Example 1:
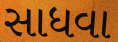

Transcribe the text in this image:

સાધવા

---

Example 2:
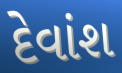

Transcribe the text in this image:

દેવાંશ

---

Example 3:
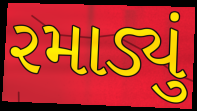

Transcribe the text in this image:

રમાડ્યું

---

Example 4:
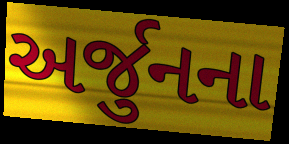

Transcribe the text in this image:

અર્જુનના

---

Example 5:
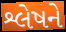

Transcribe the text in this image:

શ્લેષને